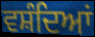
ਵਸ਼ੰਦਿਆਂ